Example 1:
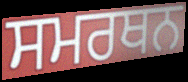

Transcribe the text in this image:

ਸਮਰਥਨ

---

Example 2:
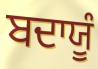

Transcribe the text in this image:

ਬਦਾਯੂੰ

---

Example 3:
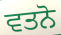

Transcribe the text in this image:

ਵਤਨੋ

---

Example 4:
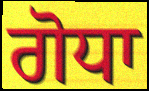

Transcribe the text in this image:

ਗੋਧਾ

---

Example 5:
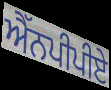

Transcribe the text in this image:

ਐੱਨਪੀਪੀਏ